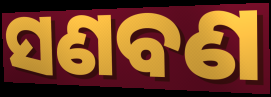
ସଣବଣ